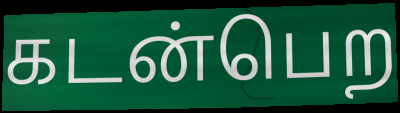
கடன்பெற